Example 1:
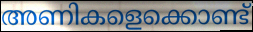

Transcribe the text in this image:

അണികളെക്കൊണ്ട്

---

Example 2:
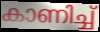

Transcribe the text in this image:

കാണിച്ച്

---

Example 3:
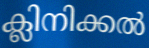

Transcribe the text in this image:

ക്ലിനിക്കൽ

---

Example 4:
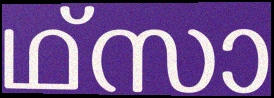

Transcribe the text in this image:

ഥ്സാ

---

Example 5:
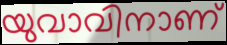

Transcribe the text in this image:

യുവാവിനാണ്